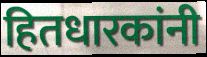
हितधारकांनी